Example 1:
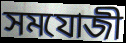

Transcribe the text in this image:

সমযোজী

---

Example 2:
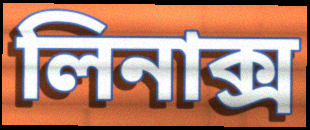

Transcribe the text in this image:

লিনাক্স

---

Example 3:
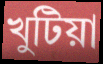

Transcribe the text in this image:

খুটিয়া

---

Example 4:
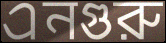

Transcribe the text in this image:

এনগুরু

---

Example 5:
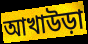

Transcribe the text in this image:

আখাউড়া